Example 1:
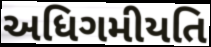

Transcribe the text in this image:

અધિગમીયતિ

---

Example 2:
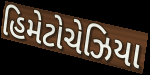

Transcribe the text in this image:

હિમેટોચેઝિયા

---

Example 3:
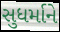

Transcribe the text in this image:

સુધર્માને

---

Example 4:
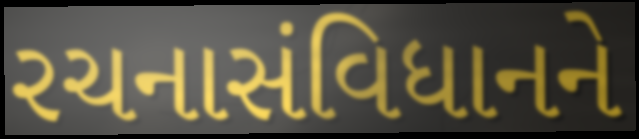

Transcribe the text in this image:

રચનાસંવિધાનને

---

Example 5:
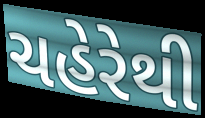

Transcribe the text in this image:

ચહેરેથી